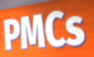
PMCs